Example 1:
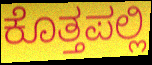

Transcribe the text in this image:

ಕೊತ್ತಪಲ್ಲಿ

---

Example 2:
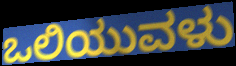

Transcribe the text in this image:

ಒಲಿಯುವಳು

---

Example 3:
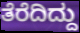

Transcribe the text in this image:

ತೆರೆದಿದ್ದು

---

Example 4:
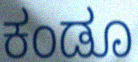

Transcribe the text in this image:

ಕಂಡೂ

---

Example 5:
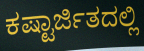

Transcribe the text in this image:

ಕಷ್ಟಾರ್ಜಿತದಲ್ಲಿ